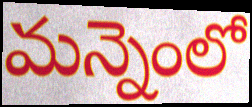
మన్నెంలో